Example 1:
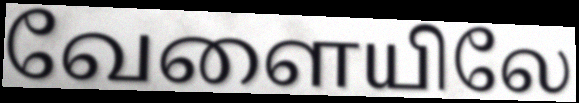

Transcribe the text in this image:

வேளையிலே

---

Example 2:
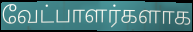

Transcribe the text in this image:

வேட்பாளர்களாக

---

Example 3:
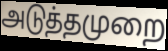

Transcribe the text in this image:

அடுத்தமுறை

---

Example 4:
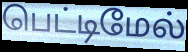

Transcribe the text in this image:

பெட்டிமேல்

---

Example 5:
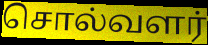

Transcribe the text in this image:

சொல்வளர்